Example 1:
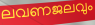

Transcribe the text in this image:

ലവണജലവും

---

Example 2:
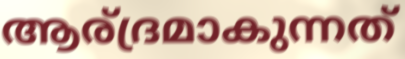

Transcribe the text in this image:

ആര്ദ്രമാകുന്നത്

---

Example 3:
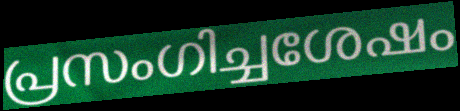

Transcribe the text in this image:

പ്രസംഗിച്ചശേഷം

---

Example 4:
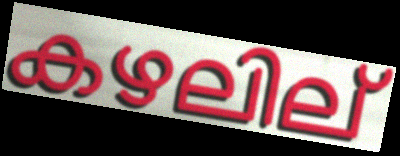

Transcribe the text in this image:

കഴലില്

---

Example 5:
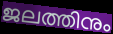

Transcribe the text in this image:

ജലത്തിനും